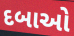
દબાઓ